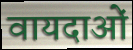
वायदाओं